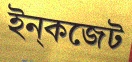
ইন্কজেট